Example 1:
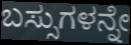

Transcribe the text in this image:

ಬಸ್ಸುಗಳನ್ನೇ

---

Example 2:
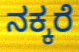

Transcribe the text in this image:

ನಕ್ಕರೆ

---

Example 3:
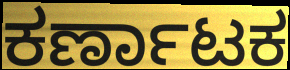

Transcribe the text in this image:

ಕರ್ಣಾಟಕ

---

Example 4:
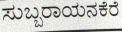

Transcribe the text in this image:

ಸುಬ್ಬರಾಯನಕೆರೆ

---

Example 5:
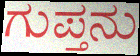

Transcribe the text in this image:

ಗುಪ್ತನು